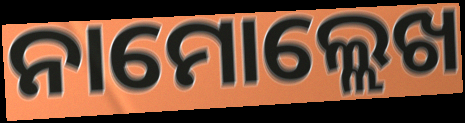
ନାମୋଲ୍ଲେଖ